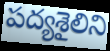
పద్యశైలిని